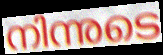
നിന്നുടെ